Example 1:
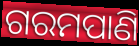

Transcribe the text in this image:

ଗରମପାଣି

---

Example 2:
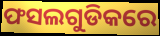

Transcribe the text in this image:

ଫସଲଗୁଡିକରେ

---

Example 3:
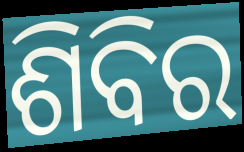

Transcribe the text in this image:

ଶିବିର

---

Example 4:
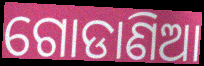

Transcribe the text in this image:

ଗୋଡାଣିଆ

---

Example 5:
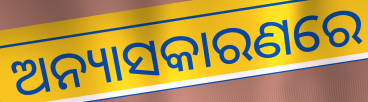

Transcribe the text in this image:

ଅନ୍ୟାସକାରଣରେ